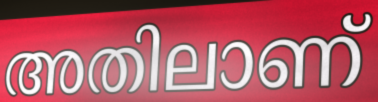
അതിലാണ്